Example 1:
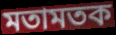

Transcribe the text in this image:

মতামতক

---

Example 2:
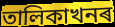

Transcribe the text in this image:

তালিকাখনৰ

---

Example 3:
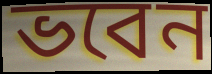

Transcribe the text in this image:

ভবেন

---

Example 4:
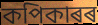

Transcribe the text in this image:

কপিকাৰৰ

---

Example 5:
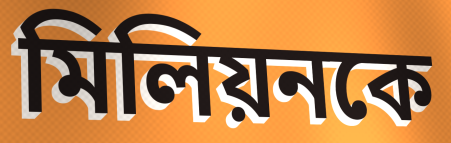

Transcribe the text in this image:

মিলিয়নকে